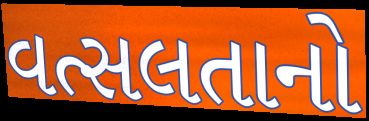
વત્સલતાનો